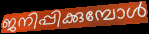
ജനിപ്പിക്കുമ്പോൾ